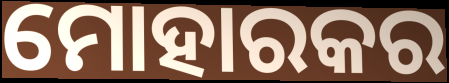
ମୋହାରକର